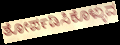
ತೋರ್ಪಡಿಸಿಕೊಳ್ಳುವ